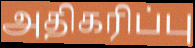
அதிகரிப்பு